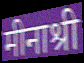
मीनाश्री